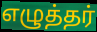
எழுத்தர்